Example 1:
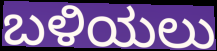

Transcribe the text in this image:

ಬಳಿಯಲು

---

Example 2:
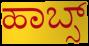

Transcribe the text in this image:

ಹಾಬ್ಸ್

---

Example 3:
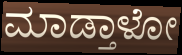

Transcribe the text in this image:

ಮಾಡ್ತಾಳೋ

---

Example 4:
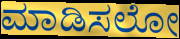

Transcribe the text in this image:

ಮಾಡಿಸಲೋ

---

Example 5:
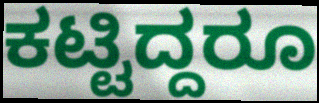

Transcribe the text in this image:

ಕಟ್ಟಿದ್ದರೂ